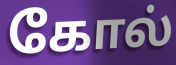
கோல்